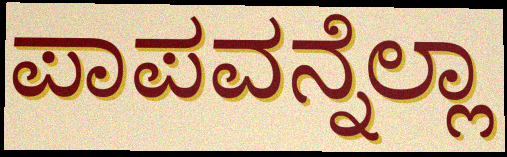
ಪಾಪವನ್ನೆಲ್ಲಾ